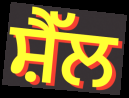
ਸ਼ੈੱਲ